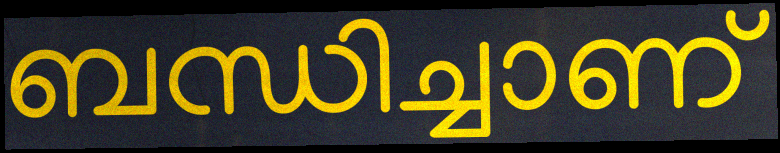
ബന്ധിച്ചാണ്